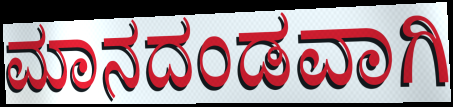
ಮಾನದಂಡವಾಗಿ